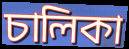
চালিকা